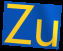
Zu